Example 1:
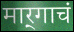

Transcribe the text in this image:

मार्गाचं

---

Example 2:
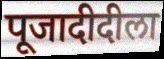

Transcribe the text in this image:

पूजादीदीला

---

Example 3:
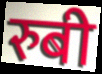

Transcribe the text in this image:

रुबी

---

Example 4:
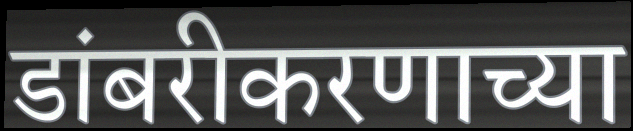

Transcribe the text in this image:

डांबरीकरणाच्या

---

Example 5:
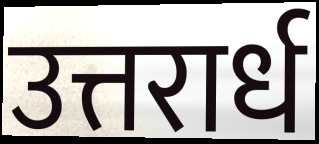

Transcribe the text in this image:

उत्तरार्ध